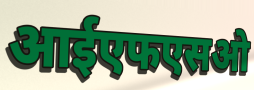
आईएफएसओ